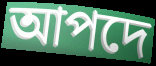
আপদে